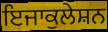
ਇਜਾਕੁਲੇਸ਼ਨ